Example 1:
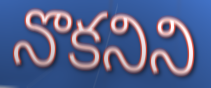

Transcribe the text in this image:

నొకనిని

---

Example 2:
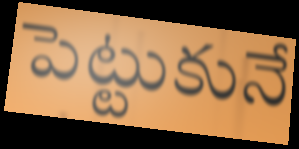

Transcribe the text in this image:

పెట్టుకునే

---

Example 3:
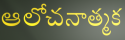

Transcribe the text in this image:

ఆలోచనాత్మక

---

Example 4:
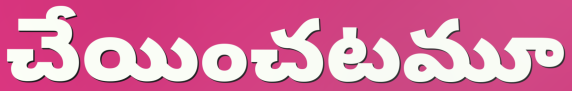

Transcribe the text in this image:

చేయించటమూ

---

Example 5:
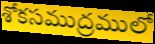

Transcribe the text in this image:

శోకసముద్రములో